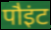
पौइंट